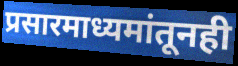
प्रसारमाध्यमांतूनही